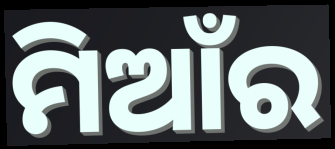
ମିଆଁର